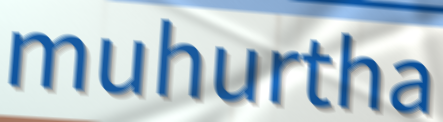
muhurtha